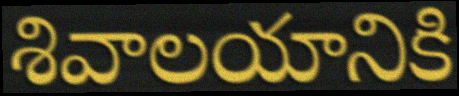
శివాలయానికి